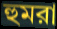
হুমরা